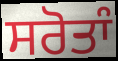
ਸਰੋਤਾੰ